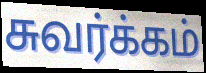
சுவர்க்கம்